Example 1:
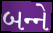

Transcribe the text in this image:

બન્‍ને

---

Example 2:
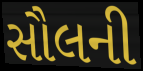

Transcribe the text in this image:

સૌલની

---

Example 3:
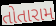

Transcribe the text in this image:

તોતારામ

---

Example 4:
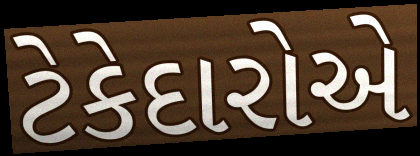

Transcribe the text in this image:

ટેકેદારોએ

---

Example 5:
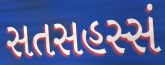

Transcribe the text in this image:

સતસહસ્સં